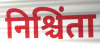
निश्चिंता